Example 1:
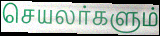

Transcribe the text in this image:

செயலர்களும்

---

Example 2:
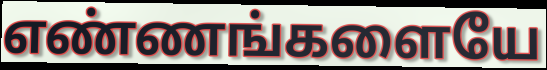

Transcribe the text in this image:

எண்ணங்களையே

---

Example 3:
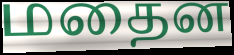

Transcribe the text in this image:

மதைன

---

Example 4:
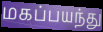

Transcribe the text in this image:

மகப்பயந்து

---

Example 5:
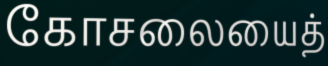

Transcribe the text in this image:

கோசலையைத்